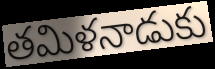
తమిళనాడుకు